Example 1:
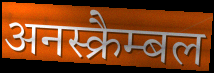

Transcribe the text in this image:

अनस्क्रैम्बल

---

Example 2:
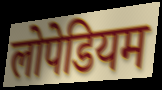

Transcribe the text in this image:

लोपेडियम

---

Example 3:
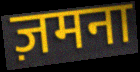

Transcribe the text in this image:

ज़मना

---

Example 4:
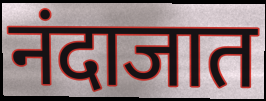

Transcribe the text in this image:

नंदाजात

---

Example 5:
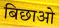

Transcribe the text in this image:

बिछाओ